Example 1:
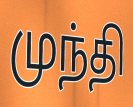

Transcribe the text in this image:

முந்தி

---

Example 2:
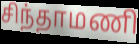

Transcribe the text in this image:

சிந்தாமணி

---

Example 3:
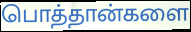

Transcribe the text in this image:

பொத்தான்களை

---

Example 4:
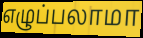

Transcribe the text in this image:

எழுப்பலாமா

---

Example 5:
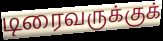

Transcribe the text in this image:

டிரைவருக்குக்